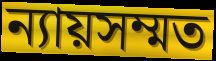
ন্যায়সম্মত